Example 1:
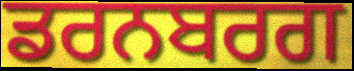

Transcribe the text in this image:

ਡਰਨਬਰਗ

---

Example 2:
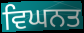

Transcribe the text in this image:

ਵਿਘਨਤ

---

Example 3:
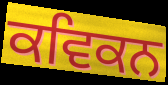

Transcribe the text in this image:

ਕਵਿਕਨ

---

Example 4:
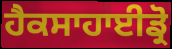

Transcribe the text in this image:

ਹੈਕਸਾਹਾਈਡ੍ਰੋ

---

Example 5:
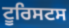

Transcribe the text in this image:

ਟੂਰਿਸਟਸ